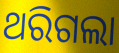
ଥରିଗଲା